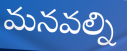
మనవల్ని